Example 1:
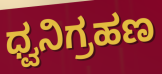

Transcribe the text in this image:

ಧ್ವನಿಗ್ರಹಣ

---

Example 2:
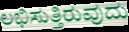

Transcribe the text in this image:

ಲಭಿಸುತ್ತಿರುವುದು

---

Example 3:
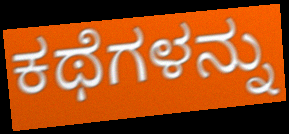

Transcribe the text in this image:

ಕಥೆಗಳನ್ನು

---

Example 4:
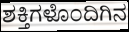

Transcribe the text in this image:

ಶಕ್ತಿಗಳೊಂದಿಗಿನ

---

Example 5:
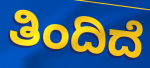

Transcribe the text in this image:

ತಿಂದಿದೆ